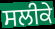
ਸਲੀਕੇ